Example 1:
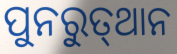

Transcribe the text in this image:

ପୁନରୁତ୍‍ଥାନ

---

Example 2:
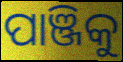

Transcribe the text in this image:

ପାଞ୍ଜିକୁ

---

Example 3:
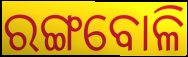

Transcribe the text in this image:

ରଙ୍ଗବୋଳି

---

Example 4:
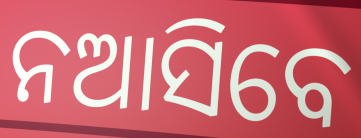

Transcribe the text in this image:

ନଆସିବେ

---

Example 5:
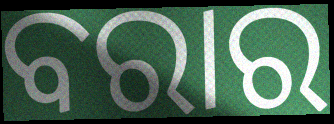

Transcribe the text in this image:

ବରାର